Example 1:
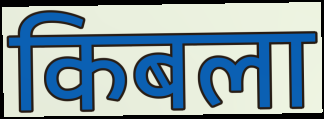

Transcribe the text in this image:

किबला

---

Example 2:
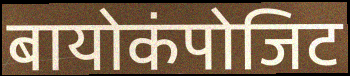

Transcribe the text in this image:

बायोकंपोजिट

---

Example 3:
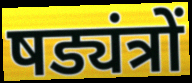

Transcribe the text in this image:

षड्यंत्रों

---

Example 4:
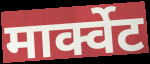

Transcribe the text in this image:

मार्क्वेट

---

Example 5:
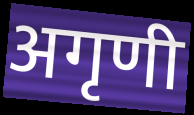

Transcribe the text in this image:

अगृणी